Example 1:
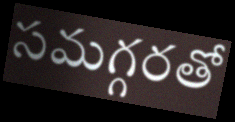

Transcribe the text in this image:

సమగ్గరతో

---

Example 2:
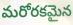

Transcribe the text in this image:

మరోరకమైన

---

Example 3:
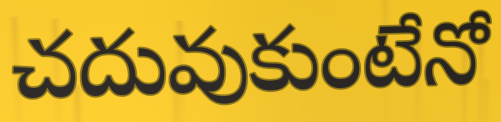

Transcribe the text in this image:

చదువుకుంటేనో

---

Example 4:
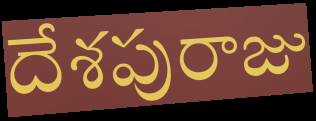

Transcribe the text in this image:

దేశపురాజు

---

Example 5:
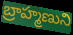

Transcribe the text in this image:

బ్రాహ్మణుని